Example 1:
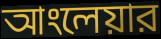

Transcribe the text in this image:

আংলেয়ার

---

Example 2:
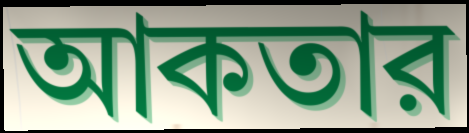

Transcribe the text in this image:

আকতার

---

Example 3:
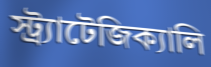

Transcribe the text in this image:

স্ট্র্যাটেজিক্যালি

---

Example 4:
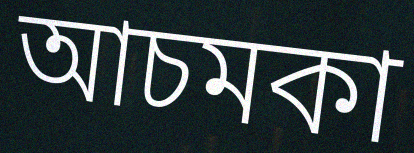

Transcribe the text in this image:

আচমকা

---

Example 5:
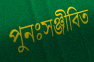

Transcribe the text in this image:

পুনঃসঞ্জীবিত